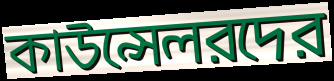
কাউন্সেলরদের